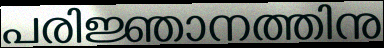
പരിജ്ഞാനത്തിനു